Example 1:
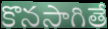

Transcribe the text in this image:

కొనసాగితే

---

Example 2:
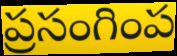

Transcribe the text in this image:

ప్రసంగింప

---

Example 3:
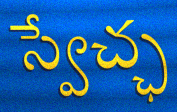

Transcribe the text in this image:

స్వేచ్ఛ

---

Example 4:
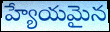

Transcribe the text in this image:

హ్యేయమైన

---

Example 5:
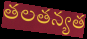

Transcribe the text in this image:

తలతన్యత